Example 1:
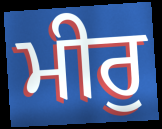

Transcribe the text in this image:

ਮੀਰੁ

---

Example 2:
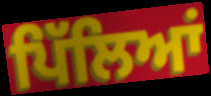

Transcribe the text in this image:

ਪਿੱਲਿਆਂ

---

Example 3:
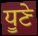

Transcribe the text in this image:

ਧੂਣੇ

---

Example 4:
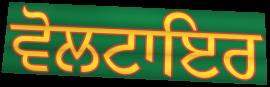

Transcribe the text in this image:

ਵੋਲਟਾਇਰ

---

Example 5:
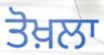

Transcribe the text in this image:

ਤੋਖ਼ਲਾ